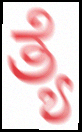
ತ್ಯೆ